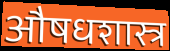
औषधशास्त्र